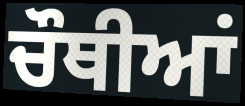
ਚੌਥੀਆਂ